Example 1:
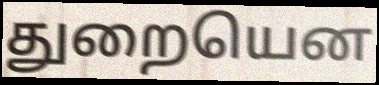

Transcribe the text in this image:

துறையென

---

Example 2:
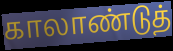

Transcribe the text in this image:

காலாண்டுத்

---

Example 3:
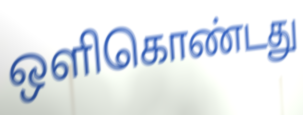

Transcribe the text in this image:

ஒளிகொண்டது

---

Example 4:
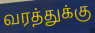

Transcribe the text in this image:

வரத்துக்கு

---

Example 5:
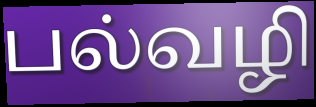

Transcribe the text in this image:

பல்வழி